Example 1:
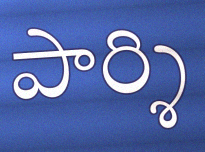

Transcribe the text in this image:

పార్శి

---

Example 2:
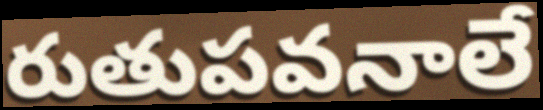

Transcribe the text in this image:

రుతుపవనాలే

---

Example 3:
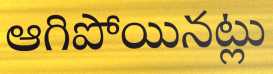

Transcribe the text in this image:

ఆగిపోయినట్లు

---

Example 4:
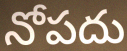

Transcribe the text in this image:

నోపదు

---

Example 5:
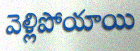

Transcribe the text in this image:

వెళ్లిపోయాయి